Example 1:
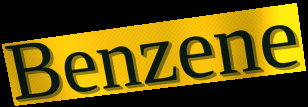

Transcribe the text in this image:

Benzene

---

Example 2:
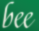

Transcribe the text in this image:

bee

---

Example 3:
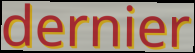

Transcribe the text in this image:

dernier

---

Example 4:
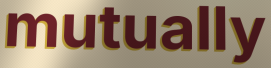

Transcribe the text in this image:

mutually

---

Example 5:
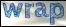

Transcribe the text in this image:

wrap